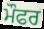
ਮੌਫਰ